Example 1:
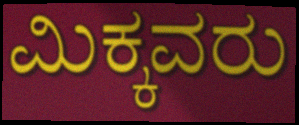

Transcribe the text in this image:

ಮಿಕ್ಕವರು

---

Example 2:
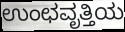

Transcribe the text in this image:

ಉಂಛವೃತ್ತಿಯ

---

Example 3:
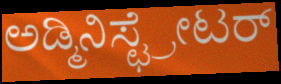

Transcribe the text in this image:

ಅಡ್ಮಿನಿಸ್ಟ್ರೇಟರ್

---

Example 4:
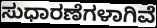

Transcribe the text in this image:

ಸುಧಾರಣೆಗಳಾಗಿವೆ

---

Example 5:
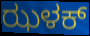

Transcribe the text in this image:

ಝಳಕ್